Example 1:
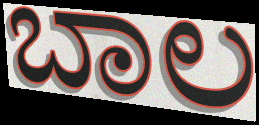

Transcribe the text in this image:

ಬಾಲ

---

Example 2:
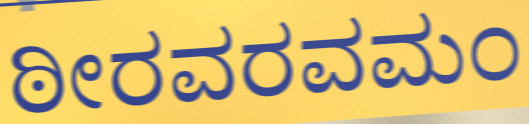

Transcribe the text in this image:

ಠೀರವರವಮಂ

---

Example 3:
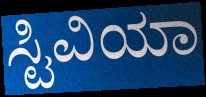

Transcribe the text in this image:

ಸ್ಟಿವಿಯಾ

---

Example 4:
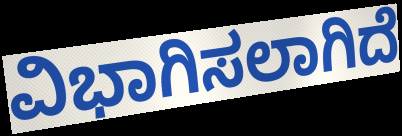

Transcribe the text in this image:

ವಿಭಾಗಿಸಲಾಗಿದೆ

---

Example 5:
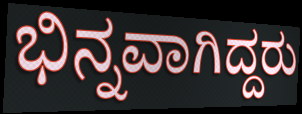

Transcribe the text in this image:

ಭಿನ್ನವಾಗಿದ್ದರು